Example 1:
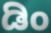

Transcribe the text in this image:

ಡಿಂ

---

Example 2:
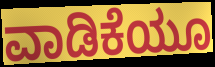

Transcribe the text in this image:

ವಾಡಿಕೆಯೂ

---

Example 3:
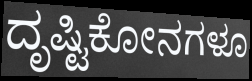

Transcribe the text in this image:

ದೃಷ್ಟಿಕೋನಗಳೂ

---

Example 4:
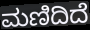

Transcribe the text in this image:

ಮಣಿದಿದೆ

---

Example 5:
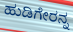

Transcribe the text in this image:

ಹುಡಿಗೇರನ್ನ